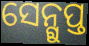
ସେନ୍ଗୁପ୍ତ